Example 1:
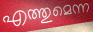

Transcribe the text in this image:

എത്തുമെന്ന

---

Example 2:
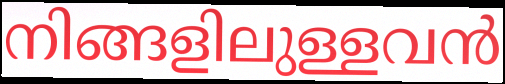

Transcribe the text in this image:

നിങ്ങളിലുള്ളവൻ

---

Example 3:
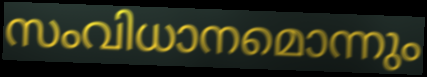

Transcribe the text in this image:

സംവിധാനമൊന്നും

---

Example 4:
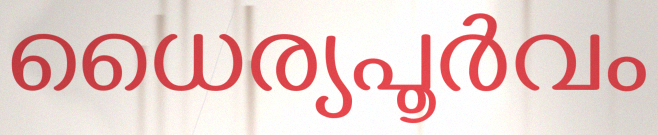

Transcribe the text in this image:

ധൈര്യപൂർവം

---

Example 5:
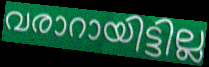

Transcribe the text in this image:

വരാറായിട്ടില്ല